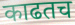
काढतच